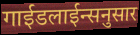
गाईडलाईन्सनुसार